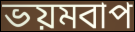
ভয়মবাপ